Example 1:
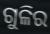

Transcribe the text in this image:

ଗୁଳିର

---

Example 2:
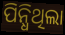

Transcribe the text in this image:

ପିନ୍ଧିଥିଲା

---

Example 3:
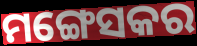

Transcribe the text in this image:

ମଙ୍ଗେସକର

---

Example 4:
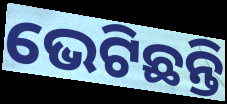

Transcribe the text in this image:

ଭେଟିଛନ୍ତି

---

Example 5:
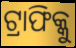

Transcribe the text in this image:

ଟ୍ରାଫିକ୍କୁ